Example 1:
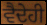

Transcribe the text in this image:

ਵੈਦੇਹੀ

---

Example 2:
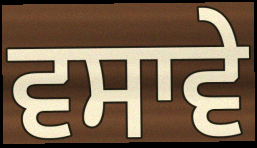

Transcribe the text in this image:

ਵਸਾਵੇ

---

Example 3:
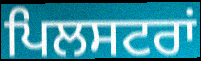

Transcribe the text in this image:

ਪਿਲਸਟਰਾਂ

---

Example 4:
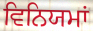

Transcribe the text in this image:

ਵਿਨਿਯਮਾਂ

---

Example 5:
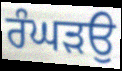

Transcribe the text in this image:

ਰੰਘੜਉ